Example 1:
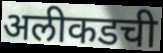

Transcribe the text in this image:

अलीकडची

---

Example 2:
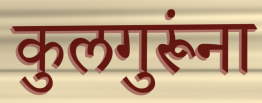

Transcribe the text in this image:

कुलगुरूंना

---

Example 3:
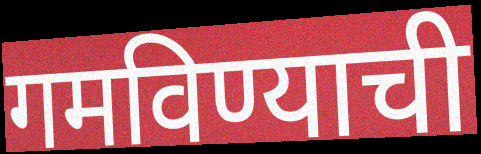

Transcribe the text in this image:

गमविण्याची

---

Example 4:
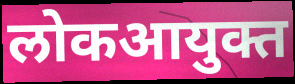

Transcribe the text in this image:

लोकआयुक्त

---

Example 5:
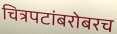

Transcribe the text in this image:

चित्रपटांबरोबरच